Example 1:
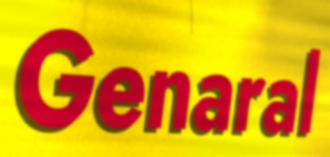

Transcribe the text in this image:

Genaral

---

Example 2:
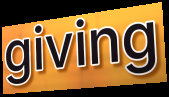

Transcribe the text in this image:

giving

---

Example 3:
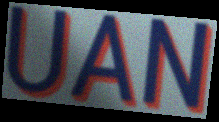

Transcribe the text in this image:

UAN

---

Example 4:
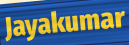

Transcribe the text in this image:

Jayakumar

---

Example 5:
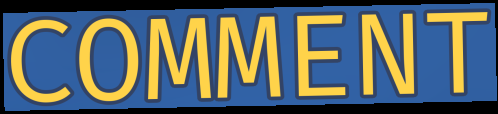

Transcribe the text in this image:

COMMENT